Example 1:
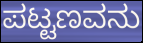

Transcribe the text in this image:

ಪಟ್ಟಣವನು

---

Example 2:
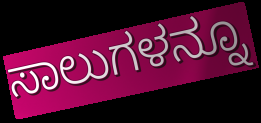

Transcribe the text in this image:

ಸಾಲುಗಳನ್ನೂ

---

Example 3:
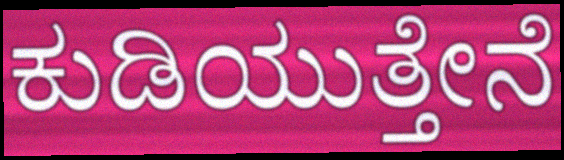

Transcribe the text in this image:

ಕುಡಿಯುತ್ತೇನೆ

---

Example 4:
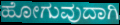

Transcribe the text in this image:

ಹೋಗುವುದಾಗಿ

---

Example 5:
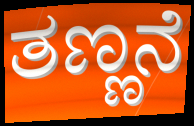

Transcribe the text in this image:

ತಣ್ಣನೆ